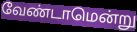
வேண்டாமென்று